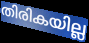
തിരികയില്ല